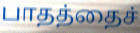
பாதத்தைச்